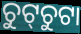
ଚୁଟ୍‌ଚୁଟା